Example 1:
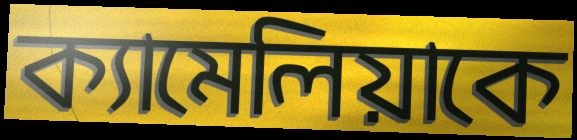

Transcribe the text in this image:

ক্যামেলিয়াকে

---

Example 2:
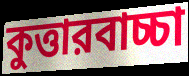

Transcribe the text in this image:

কুত্তারবাচ্চা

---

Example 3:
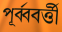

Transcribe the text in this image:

পূর্ব্ববর্ত্তী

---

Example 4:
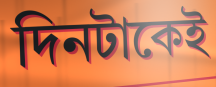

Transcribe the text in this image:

দিনটাকেই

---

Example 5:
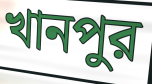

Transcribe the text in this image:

খানপুর